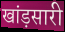
खांड़सारी